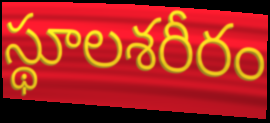
స్థూలశరీరం